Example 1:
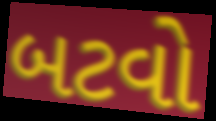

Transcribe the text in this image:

બટવો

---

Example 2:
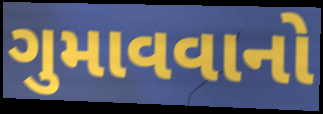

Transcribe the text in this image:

ગુમાવવાનો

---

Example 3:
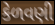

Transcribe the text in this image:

કેળવણી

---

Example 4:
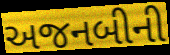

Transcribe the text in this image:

અજનબીની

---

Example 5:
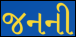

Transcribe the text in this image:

જનની